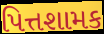
પિત્તશામક